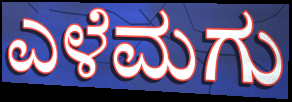
ಎಳೆಮಗು